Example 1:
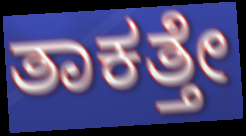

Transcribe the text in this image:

ತಾಕತ್ತೇ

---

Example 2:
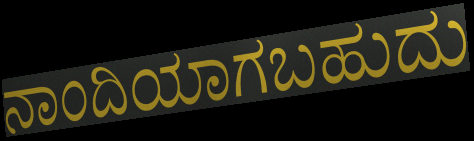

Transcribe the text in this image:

ನಾಂದಿಯಾಗಬಹುದು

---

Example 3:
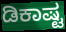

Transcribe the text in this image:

ಡಿಕಾಷ್ಟ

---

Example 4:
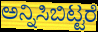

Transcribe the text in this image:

ಅನ್ನಿಸಿಬಿಟ್ಟರೆ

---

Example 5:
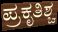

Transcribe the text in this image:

ಪ್ರಕೃತಿಶ್ಚ